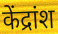
केंद्रांश